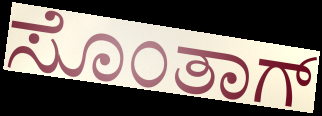
ಸೊಂತಾಗ್